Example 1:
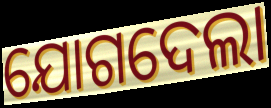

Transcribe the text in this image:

ଯୋଗଦେଲା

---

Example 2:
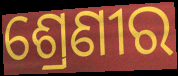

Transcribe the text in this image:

ଶ୍ରେଣୀର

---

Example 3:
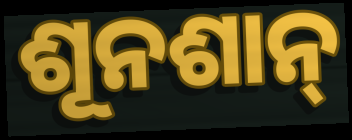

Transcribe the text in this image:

ଶୂନଶାନ୍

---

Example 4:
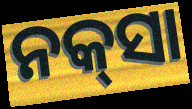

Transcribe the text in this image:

ନକ୍‍ସା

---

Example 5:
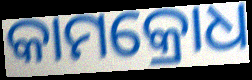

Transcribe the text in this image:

କାମକ୍ରୋଧ